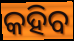
କହିବ